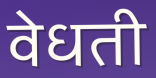
वेधती